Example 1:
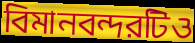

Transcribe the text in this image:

বিমানবন্দরটিও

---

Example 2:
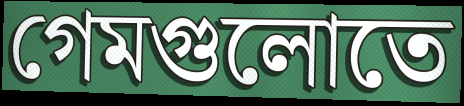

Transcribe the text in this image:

গেমগুলোতে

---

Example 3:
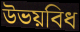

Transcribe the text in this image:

উভয়বিধ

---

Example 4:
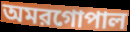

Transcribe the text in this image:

অমরগোপাল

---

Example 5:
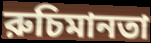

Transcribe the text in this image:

রুচিমানতা